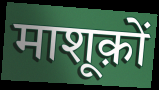
माशूक़ों